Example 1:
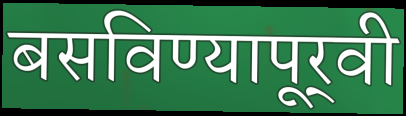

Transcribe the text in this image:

बसविण्यापूर्वी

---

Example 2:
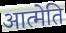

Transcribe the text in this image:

आत्मेति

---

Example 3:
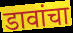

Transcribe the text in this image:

डावांचा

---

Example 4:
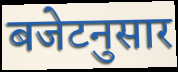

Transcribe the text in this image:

बजेटनुसार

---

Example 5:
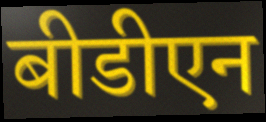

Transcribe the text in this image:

बीडीएन